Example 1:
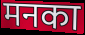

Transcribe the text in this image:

मनका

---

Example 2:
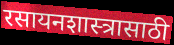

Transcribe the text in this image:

रसायनशास्त्रासाठी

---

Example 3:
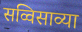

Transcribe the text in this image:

सव्विसाव्या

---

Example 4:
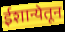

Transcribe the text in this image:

ईशान्येतून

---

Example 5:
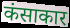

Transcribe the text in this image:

कंसाकार